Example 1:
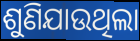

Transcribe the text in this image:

ଶୁଣିଯାଉଥିଲା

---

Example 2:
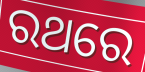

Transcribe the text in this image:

ରଥରେ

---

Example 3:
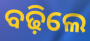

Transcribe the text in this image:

ବଢ଼ିଲେ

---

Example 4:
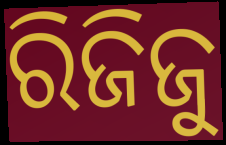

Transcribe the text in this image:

ରିଜିଜୁ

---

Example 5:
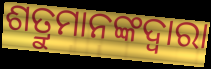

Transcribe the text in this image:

ଶତ୍ରୁମାନଙ୍କଦ୍ଵାରା